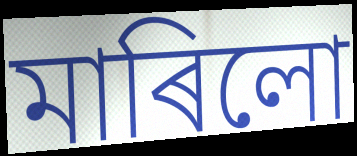
মাৰিলো